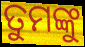
ତୁମଙ୍କୁ